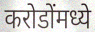
करोडोंमध्ये